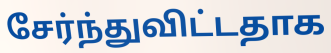
சேர்ந்துவிட்டதாக